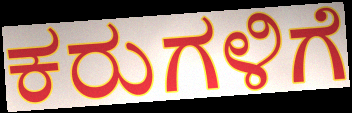
ಕರುಗಳಿಗೆ